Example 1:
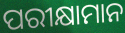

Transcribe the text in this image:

ପରୀକ୍ଷାମାନ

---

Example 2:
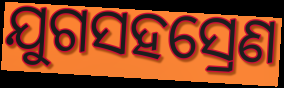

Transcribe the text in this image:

ଯୁଗସହସ୍ରେଣ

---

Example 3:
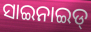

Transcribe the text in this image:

ସାଇନାଇଡ୍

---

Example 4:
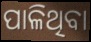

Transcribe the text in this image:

ପାଳିଥିବା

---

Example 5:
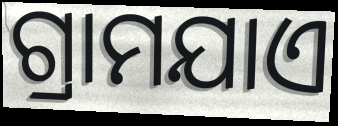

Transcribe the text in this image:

ଗ୍ରାମଯାଏ